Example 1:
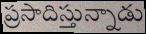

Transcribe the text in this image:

ప్రసాదిస్తున్నాడు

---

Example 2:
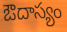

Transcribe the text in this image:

ఔదాస్యం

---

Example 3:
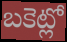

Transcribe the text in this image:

బకెట్లో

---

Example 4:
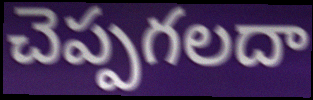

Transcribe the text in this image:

చెప్పగలదా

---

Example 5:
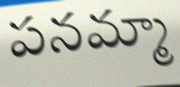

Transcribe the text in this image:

పనమ్మా